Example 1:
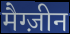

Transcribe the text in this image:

मैग्ज़ीन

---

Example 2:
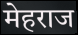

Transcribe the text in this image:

मेहराज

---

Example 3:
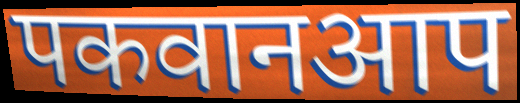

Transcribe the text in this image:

पकवानआप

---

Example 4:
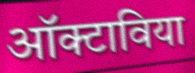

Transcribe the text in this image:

ऑक्टाविया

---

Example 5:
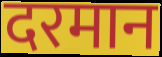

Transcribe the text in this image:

दरमान